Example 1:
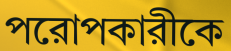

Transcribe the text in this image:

পরোপকারীকে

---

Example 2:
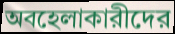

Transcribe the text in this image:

অবহেলাকারীদের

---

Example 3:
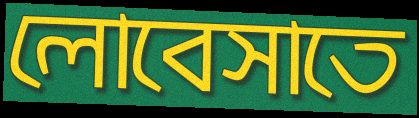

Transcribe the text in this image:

লোবেসাতে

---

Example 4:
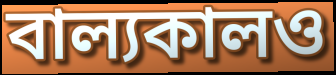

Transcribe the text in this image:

বাল্যকালও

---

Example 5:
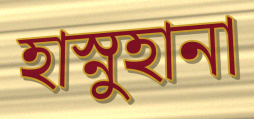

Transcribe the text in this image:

হাস্নুহানা